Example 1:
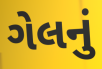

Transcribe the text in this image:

ગેલનું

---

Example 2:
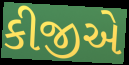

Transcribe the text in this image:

કીજીએ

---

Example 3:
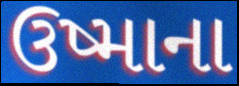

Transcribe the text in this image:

ઉષ્માના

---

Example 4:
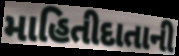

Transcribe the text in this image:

માહિતીદાતાની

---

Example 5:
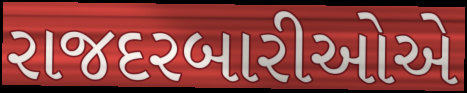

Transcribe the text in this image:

રાજદરબારીઓએ